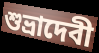
শুভ্রাদেবী